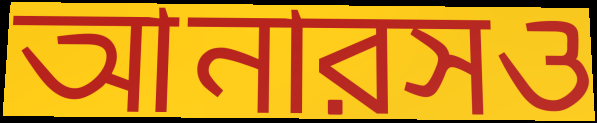
আনারসও